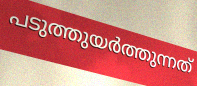
പടുത്തുയർത്തുന്നത്